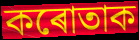
কৰোতাক